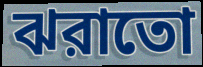
ঝরাতো